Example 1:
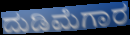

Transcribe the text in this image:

ದುಡಿಮೆಗಾರ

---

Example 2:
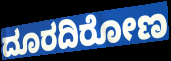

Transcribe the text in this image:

ದೂರದಿರೋಣ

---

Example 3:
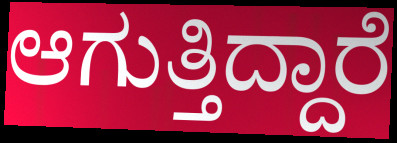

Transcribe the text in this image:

ಆಗುತ್ತಿದ್ದಾರೆ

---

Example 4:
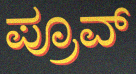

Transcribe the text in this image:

ಪ್ರೂವ್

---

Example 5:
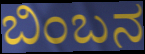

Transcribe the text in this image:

ಬಿಂಬನ